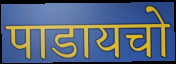
पाडायचो